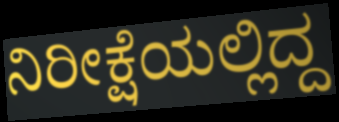
ನಿರೀಕ್ಷೆಯಲ್ಲಿದ್ದ